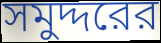
সমুদ্দরের